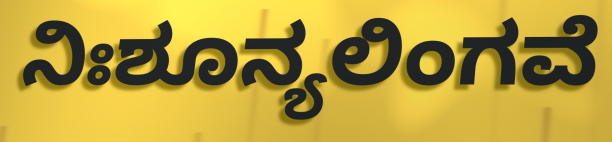
ನಿಃಶೂನ್ಯಲಿಂಗವೆ